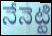
నేనెట్టి